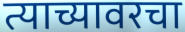
त्याच्यावरचा